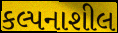
કલ્પનાશીલ